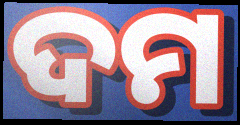
ଦମ